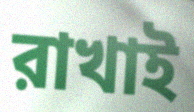
রাখাই